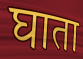
घाता